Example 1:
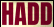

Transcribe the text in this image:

HADD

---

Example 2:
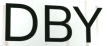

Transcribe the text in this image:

DBY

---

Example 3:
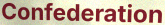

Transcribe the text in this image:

Confederation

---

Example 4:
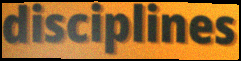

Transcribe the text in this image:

disciplines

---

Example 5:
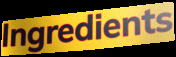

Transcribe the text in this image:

Ingredients